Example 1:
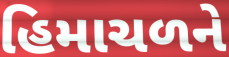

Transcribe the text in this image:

હિમાચળને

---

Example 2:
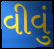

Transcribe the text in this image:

વીવું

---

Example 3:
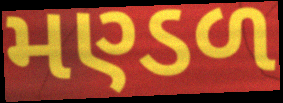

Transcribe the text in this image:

મણ્ડળ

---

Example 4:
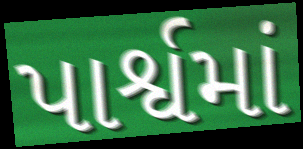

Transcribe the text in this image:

પાર્શ્વમાં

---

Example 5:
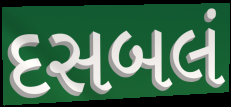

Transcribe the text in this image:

દસબલં